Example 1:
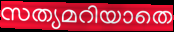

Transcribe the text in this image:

സത്യമറിയാതെ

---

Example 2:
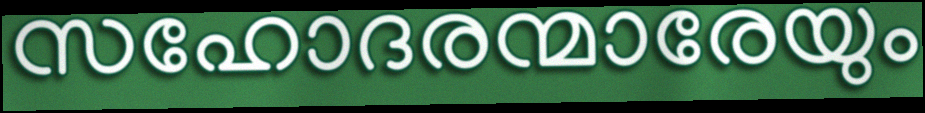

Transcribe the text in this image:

സഹോദരന്മാരേയും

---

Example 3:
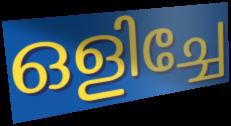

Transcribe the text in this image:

ഒളിച്ചേ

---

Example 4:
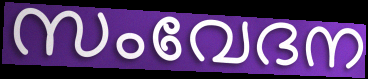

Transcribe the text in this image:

സംവേദന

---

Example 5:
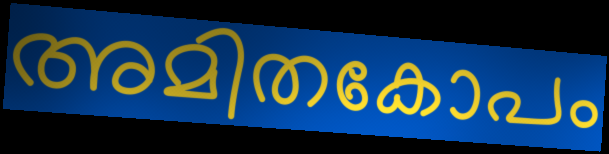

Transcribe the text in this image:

അമിതകോപം